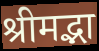
श्रीमद्भा